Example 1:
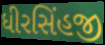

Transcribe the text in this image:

ધીરસિંહજી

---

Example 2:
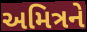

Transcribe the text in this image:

અમિત્રને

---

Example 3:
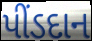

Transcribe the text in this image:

પીંડદાન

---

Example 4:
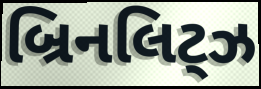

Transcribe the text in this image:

બ્રિનલિટ્ઝ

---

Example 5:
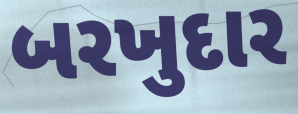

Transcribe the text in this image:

બરખુદાર